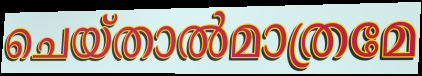
ചെയ്താൽമാത്രമേ